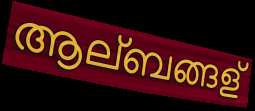
ആല്ബങ്ങള്